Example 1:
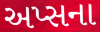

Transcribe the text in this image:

અપ્સના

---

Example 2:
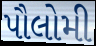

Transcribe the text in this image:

પૌલોમી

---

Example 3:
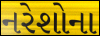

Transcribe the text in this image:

નરેશોના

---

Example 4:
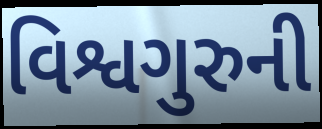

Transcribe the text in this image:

વિશ્વગુરુની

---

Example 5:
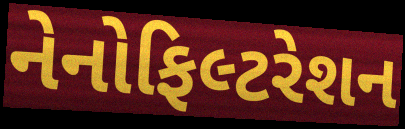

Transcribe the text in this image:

નેનોફિલ્ટરેશન